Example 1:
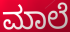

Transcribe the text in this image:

ಮಾಲೆ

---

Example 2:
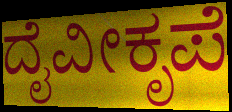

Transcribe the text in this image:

ದೈವೀಕೃಪೆ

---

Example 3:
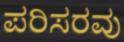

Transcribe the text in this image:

ಪರಿಸರವು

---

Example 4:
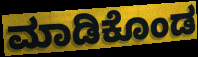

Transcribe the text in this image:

ಮಾಡಿಕೊಂಡ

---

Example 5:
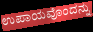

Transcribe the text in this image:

ಉಪಾಯವೊಂದನ್ನು